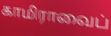
காமிராவைப்